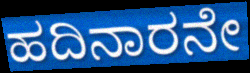
ಹದಿನಾರನೇ